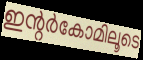
ഇന്റർകോമിലൂടെ